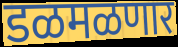
डळमळणार